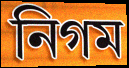
নিগম